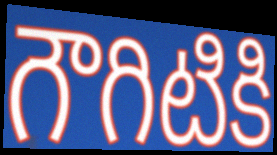
గౌగిటికి